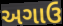
અગાઉ